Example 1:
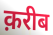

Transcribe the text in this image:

क़रीब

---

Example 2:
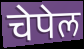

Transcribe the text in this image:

चेपेल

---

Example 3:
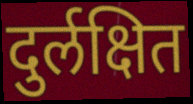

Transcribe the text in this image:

दुर्लक्षित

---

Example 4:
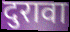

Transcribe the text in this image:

दुरावा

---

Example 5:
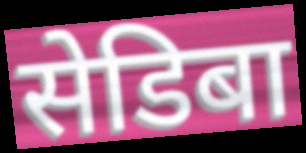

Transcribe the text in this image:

सेडिबा